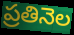
ప్రతినెల